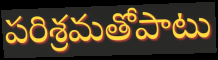
పరిశ్రమతోపాటు